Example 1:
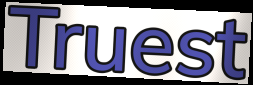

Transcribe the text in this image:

Truest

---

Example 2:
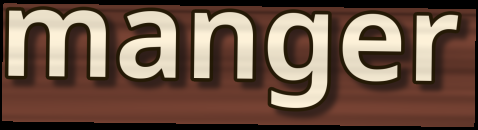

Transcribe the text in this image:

manger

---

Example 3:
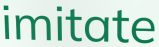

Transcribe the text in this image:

imitate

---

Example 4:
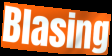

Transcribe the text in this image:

Blasing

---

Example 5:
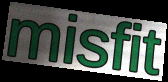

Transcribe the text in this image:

misfit